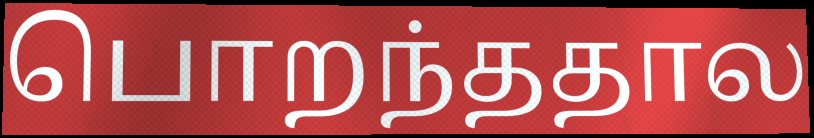
பொறந்ததால